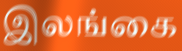
இலங்கை